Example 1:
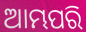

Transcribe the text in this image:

ଆମ୍ଭପରି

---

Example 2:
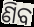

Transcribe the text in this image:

ଣିବ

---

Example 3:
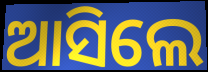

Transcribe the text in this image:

ଆସିଲେ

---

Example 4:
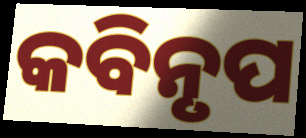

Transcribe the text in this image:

କବିନୃପ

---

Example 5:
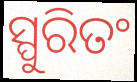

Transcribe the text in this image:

ସ୍ପୁରିତଂ